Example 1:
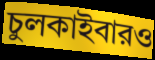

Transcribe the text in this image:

চুলকাইবারও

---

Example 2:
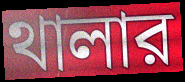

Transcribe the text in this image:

থালার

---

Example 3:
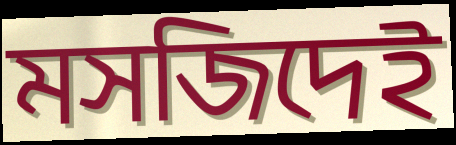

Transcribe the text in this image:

মসজিদেই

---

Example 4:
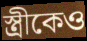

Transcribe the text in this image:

স্ত্রীকেও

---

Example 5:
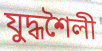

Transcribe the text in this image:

যুদ্ধশৈলী